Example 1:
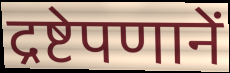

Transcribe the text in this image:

द्रष्टेपणानें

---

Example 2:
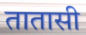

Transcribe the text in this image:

तातासी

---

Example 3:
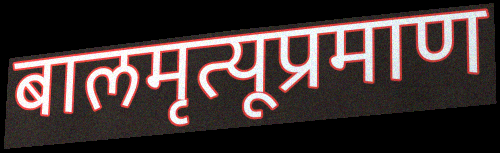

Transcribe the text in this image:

बालमृत्यूप्रमाण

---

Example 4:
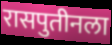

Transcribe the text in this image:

रासपुतीनला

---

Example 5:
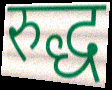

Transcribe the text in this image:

रुद्ध